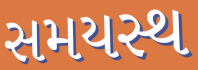
સમયસ્થ